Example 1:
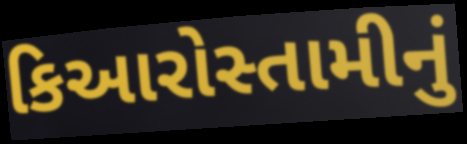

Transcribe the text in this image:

કિઆરોસ્તામીનું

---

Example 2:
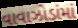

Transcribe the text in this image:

વાવાઝોડાંમાં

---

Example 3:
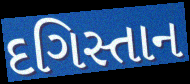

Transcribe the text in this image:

દગિસ્તાન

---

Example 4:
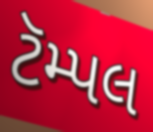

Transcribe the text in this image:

ટૅમ્પલ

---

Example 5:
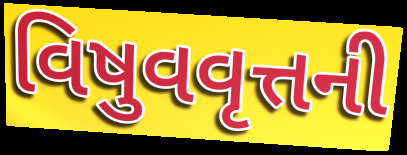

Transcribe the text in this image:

વિષુવવૃત્તની